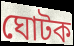
ঘোটক